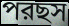
পরছস